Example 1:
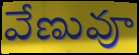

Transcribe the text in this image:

వేణువూ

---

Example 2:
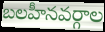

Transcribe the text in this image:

బలహీనవర్గాల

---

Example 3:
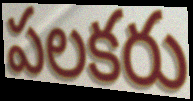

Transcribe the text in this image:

పలకరు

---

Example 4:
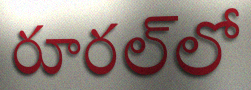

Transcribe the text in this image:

రూరల్‌లో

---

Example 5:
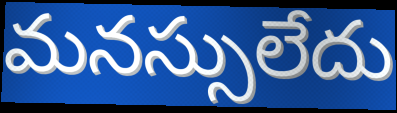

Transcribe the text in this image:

మనస్సులేదు